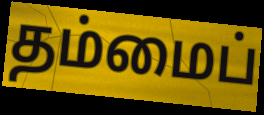
தம்மைப்